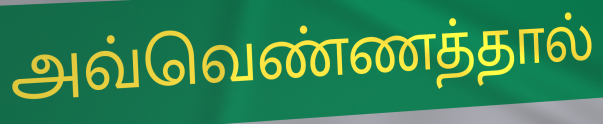
அவ்வெண்ணத்தால்